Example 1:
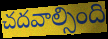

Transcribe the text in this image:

చదవాల్సింది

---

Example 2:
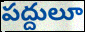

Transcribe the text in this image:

పద్దులూ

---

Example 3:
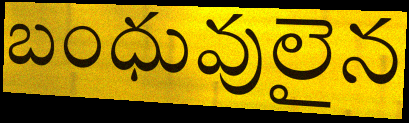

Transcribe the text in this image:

బంధువులైన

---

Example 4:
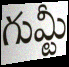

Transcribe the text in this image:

గుమ్టీ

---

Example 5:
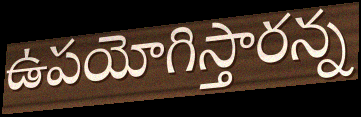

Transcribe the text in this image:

ఉపయోగిస్తారన్న